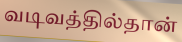
வடிவத்தில்தான்